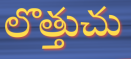
లొత్తుచు